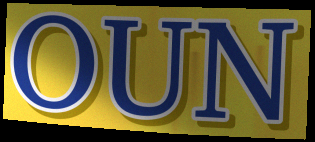
OUN